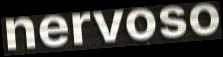
nervoso